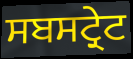
ਸਬਸਟ੍ਰੇਟ